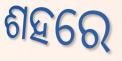
ଶହରେ